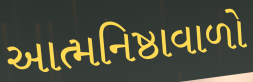
આત્મનિષ્ઠાવાળો